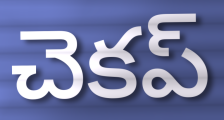
చెకప్